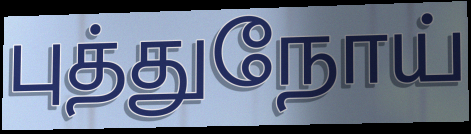
புத்துநோய்